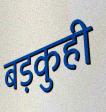
बड़कुही